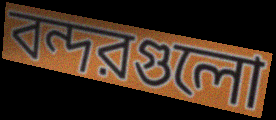
বন্দরগুলো